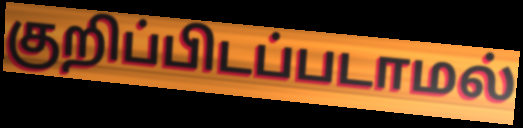
குறிப்பிடப்படாமல்